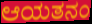
ಆಯತನಂ